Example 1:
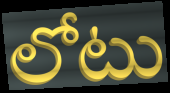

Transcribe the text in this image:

లోటు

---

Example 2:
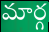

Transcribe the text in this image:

మార్గ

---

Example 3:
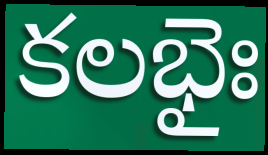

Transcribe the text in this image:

కలభైః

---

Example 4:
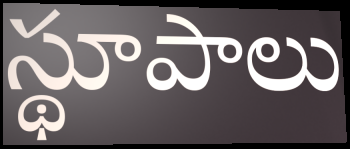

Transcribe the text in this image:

స్థూపాలు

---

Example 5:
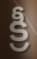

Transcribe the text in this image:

క్రీ